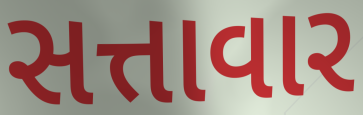
સત્તાવાર